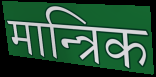
मान्त्रिक